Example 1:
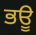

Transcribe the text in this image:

ਭਊ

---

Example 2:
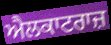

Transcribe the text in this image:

ਐਲਕਾਟਰਾਜ਼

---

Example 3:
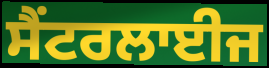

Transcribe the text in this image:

ਸੈਂਟਰਲਾਈਜ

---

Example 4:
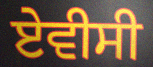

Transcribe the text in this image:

ਏਵੀਸੀ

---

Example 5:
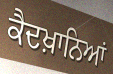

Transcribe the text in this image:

ਕੈਦਖ਼ਾਨਿਆਂ